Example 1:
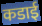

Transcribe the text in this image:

कडाई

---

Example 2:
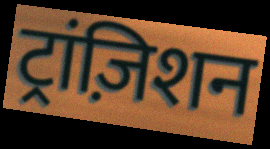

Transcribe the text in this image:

ट्रांज़िशन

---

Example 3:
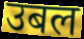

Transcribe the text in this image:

उबल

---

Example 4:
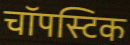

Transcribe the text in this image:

चॉपस्टिक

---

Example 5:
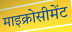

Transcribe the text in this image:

माइक्रोसीमेंट